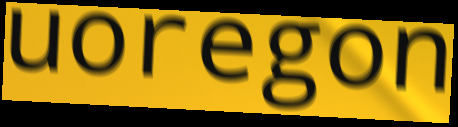
uoregon